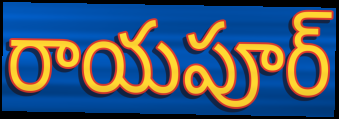
రాయపూర్